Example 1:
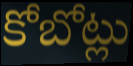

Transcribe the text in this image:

కోబోట్లు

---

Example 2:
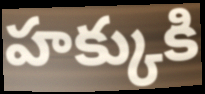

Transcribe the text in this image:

హక్కుకి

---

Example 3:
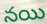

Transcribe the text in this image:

నయి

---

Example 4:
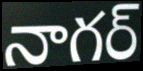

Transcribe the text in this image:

నాగర్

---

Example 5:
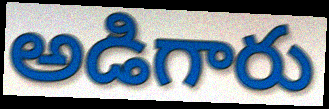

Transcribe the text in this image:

అడిగారు